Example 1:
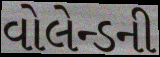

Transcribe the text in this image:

વોલેન્ડની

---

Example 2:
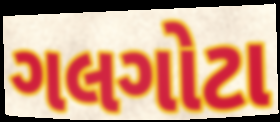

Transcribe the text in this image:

ગલગોટા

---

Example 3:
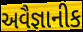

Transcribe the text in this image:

અવૈજ્ઞાનીક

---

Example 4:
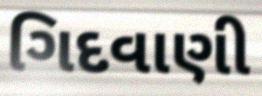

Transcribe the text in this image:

ગિદવાણી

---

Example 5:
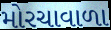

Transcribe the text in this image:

મોરચાવાળા